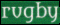
rugby